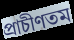
প্রাচীণতম